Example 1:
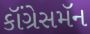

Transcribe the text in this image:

કૉંગ્રેસમૅન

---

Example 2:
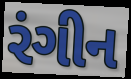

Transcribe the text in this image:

રંગીન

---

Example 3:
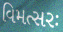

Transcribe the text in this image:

વિમત્સરઃ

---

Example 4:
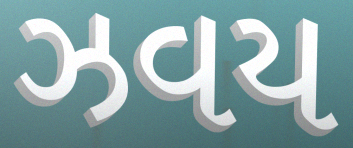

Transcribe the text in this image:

ઝવય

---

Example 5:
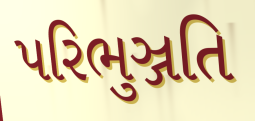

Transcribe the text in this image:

પરિભુઞ્જતિ